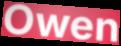
Owen